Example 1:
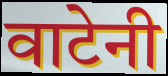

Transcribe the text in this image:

वाटेनी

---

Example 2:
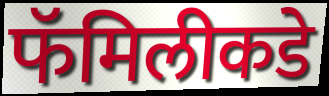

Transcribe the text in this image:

फॅमिलीकडे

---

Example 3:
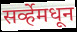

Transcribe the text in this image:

सर्व्हेमधून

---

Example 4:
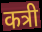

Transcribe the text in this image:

कत्री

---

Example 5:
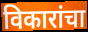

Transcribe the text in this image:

विकारांचा